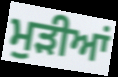
ਮੁੜੀਆਂ